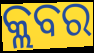
କ୍ଲବର